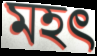
মহত্‍